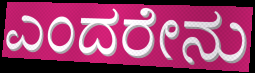
ಎಂದರೇನು